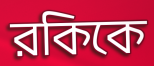
রকিকে